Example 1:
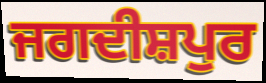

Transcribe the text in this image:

ਜਗਦੀਸ਼ਪੁਰ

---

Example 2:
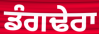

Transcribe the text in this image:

ਡੰਗਢੇਰਾ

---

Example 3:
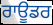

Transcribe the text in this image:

ਰਾਊਡਰ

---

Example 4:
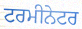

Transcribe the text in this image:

ਟਰਮੀਨੇਟਰ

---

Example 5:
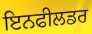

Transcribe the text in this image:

ਇਨਫੀਲਡਰ